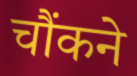
चौंकने